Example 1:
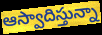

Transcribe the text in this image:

ఆస్వాదిస్తున్నా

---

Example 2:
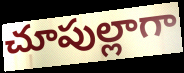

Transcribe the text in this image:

చూపుల్లాగా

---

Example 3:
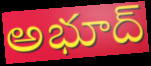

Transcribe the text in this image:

అభూద్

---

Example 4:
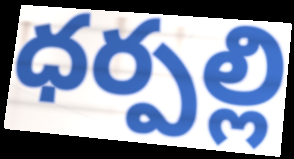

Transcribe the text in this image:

ధర్పల్లి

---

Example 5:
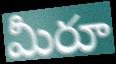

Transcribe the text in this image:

మీరూ